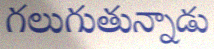
గలుగుతున్నాడు